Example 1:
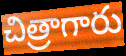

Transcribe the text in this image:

చిత్రాగారు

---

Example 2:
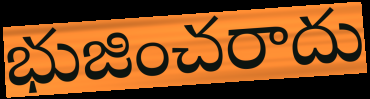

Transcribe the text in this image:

భుజించరాదు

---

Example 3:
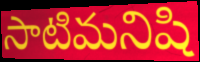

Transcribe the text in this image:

సాటిమనిషి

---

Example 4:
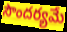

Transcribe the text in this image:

సౌందర్యమే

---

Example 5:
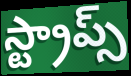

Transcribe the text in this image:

స్ట్రాప్స్